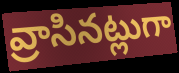
వ్రాసినట్లుగా